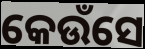
କେଉଁସେ